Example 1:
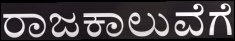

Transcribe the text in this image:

ರಾಜಕಾಲುವೆಗೆ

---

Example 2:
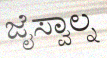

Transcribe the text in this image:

ಜೈಸ್ವಾಲ್ನ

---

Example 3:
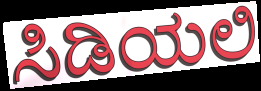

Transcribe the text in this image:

ಸಿಡಿಯಲಿ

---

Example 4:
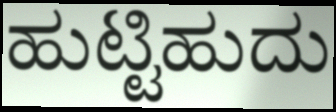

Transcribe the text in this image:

ಹುಟ್ಟಿಹುದು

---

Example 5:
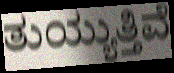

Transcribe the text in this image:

ತುಯ್ಯುತ್ತಿವೆ